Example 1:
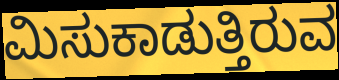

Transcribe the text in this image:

ಮಿಸುಕಾಡುತ್ತಿರುವ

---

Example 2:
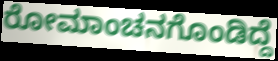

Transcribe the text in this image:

ರೋಮಾಂಚನಗೊಂಡಿದ್ದೆ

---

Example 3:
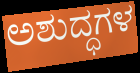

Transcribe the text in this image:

ಅಶುದ್ಧಗಳ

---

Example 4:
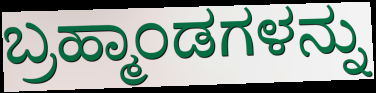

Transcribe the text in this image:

ಬ್ರಹ್ಮಾಂಡಗಳನ್ನು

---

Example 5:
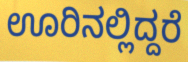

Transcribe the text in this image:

ಊರಿನಲ್ಲಿದ್ದರೆ